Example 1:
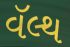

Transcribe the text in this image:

વૅલ્થ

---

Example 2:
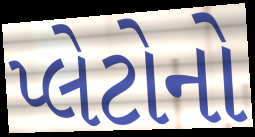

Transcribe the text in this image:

પ્લેટોનો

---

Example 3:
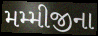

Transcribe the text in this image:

મમ્મીજીના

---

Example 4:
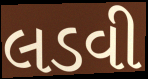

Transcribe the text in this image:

લડવી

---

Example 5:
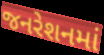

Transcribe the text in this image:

જનરેશનમાં